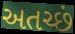
અતચ્છં